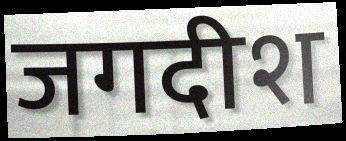
जगदीश